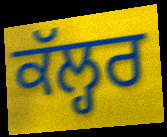
ਕੱਲ੍ਹਰ